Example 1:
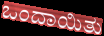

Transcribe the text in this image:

ಒಂದಾಯಿತು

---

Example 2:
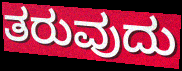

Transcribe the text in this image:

ತರುವುದು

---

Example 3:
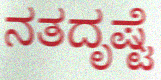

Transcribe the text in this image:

ನತದೃಷ್ಟೆ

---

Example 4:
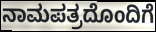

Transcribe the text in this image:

ನಾಮಪತ್ರದೊಂದಿಗೆ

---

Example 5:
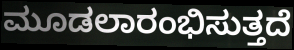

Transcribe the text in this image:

ಮೂಡಲಾರಂಭಿಸುತ್ತದೆ